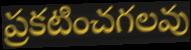
ప్రకటించగలవు